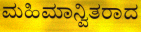
ಮಹಿಮಾನ್ವಿತರಾದ